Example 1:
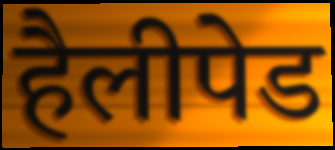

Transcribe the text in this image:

हैलीपेड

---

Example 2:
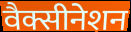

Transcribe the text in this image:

वैक्सीनेशन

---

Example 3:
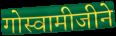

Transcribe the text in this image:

गोस्वामीजीने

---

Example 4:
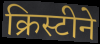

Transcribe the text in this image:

क्रिस्टीने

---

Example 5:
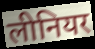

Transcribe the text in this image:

लीनियर